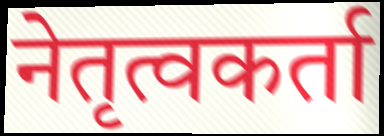
नेतृत्‍वकर्ता